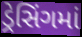
ડ્રેસિંગમાં